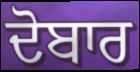
ਦੋਬਾਰ